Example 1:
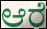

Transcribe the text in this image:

ಆರೆ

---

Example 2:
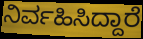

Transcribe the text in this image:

ನಿರ್ವಹಿಸಿದ್ದಾರೆ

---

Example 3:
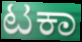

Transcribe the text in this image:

ಟಕಾ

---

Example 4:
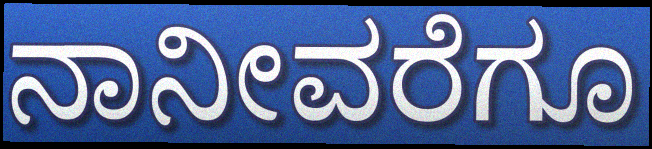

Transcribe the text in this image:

ನಾನೀವರೆಗೂ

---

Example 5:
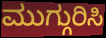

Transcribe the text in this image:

ಮುಗ್ಗುರಿಸಿ